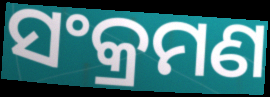
ସଂକ୍ରମଣ